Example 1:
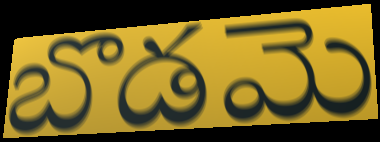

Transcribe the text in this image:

బొడమె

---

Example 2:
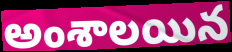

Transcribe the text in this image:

అంశాలయిన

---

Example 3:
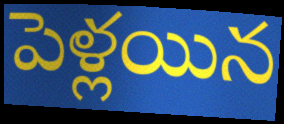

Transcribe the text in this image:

పెళ్లయిన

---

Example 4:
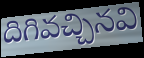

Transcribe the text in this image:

దిగివచ్చినవి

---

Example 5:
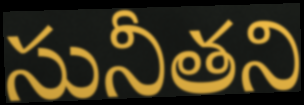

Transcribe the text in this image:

సునీతని